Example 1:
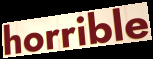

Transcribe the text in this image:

horrible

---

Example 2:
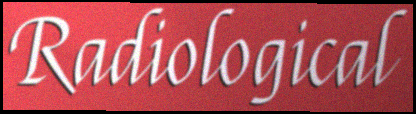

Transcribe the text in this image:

Radiological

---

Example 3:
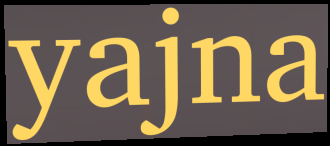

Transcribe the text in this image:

yajna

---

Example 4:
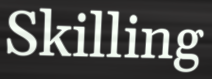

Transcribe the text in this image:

Skilling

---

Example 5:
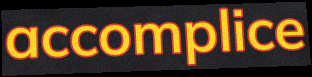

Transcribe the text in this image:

accomplice